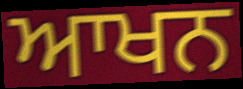
ਆਖਨ